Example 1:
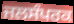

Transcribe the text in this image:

ਜਲਸੰਪਰਕ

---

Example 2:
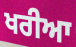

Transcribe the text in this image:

ਖਰੀਆ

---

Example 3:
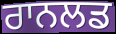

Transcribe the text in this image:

ਰਾਨਲਡ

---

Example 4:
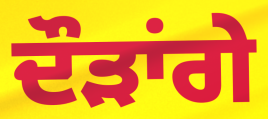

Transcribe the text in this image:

ਦੌੜਾਂਗੇ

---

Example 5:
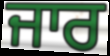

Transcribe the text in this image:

ਜਾਰ